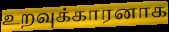
உறவுக்காரனாக